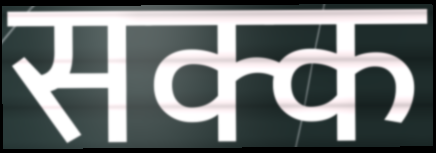
सक्क